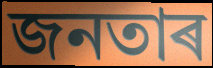
জনতাৰ